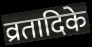
व्रतादिके